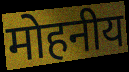
मोहनीय